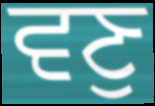
ਵਣੁ